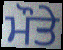
ਮੌਤੇ